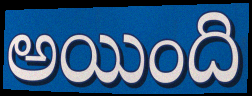
అయింది